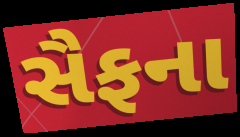
સૈફના